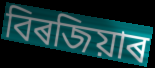
বিৰজিয়াৰ